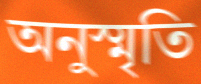
অনুস্মৃতি